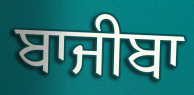
ਬਾਜੀਬਾ